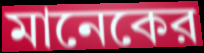
মানেকের